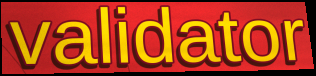
validator